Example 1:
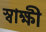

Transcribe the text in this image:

স্বাক্ষী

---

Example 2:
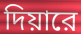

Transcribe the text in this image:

দিয়ারে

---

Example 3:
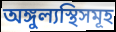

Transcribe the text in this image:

অঙ্গুল্যস্থিসমূহ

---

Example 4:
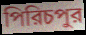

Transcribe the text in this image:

পিরিচপুর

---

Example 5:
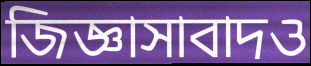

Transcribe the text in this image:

জিজ্ঞাসাবাদও